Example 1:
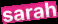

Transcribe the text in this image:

sarah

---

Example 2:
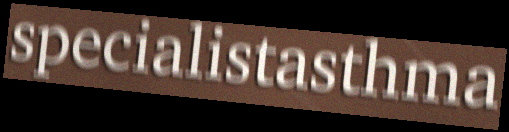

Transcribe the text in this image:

specialistasthma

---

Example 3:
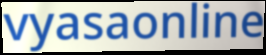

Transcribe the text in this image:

vyasaonline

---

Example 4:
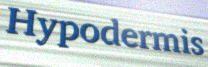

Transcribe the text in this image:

Hypodermis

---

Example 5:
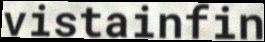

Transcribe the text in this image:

vistainfin